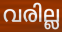
വരില്ല